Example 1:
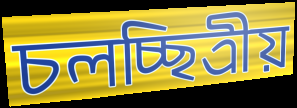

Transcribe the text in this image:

চলচ্ছিত্ৰীয়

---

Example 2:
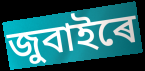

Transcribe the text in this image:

জুবাইৰে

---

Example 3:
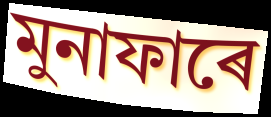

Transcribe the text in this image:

মুনাফাৰে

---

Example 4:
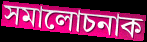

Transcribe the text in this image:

সমালোচনাক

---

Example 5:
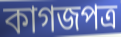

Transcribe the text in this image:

কাগজপত্ৰ